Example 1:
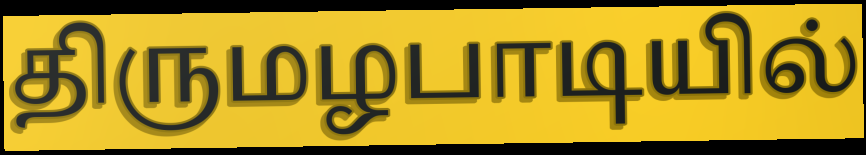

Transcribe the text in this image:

திருமழபாடியில்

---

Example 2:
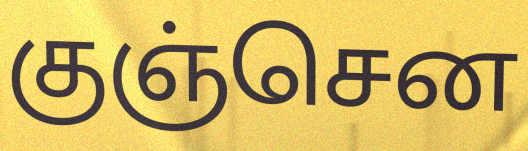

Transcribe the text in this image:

குஞ்சென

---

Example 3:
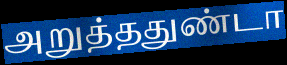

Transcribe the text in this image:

அறுத்ததுண்டா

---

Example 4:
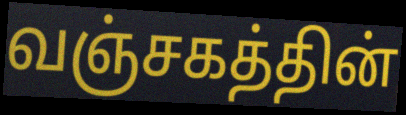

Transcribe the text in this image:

வஞ்சகத்தின்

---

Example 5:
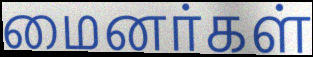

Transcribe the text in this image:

மைனர்கள்